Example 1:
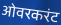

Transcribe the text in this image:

ओवरकरंट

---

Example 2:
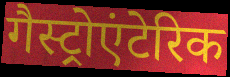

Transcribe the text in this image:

गैस्ट्रोएंटेरिक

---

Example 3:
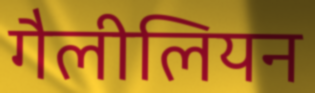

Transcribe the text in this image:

गैलीलियन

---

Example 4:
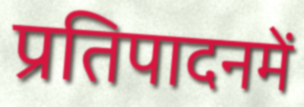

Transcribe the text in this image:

प्रतिपादनमें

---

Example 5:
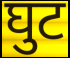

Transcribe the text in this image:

घुट